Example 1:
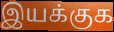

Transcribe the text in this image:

இயக்குக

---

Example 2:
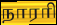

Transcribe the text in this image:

நாரரி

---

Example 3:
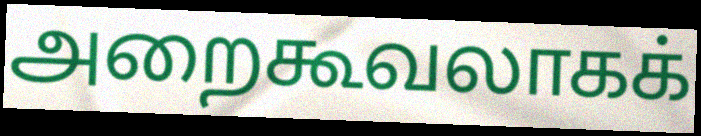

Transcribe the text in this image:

அறைகூவலாகக்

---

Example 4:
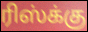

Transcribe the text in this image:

ரிஸ்க்கு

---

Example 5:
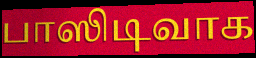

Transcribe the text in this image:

பாஸிடிவாக